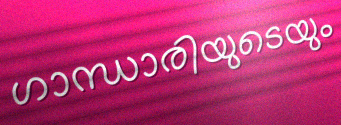
ഗാന്ധാരിയുടെയും